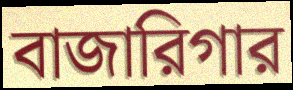
বাজারিগার